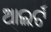
ଆଲର୍ଟ